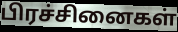
பிரச்சினைகள்